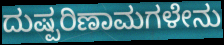
ದುಷ್ಪರಿಣಾಮಗಳೇನು